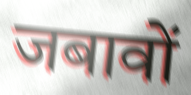
जबावों